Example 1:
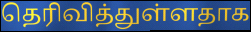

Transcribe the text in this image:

தெரிவித்துள்ளதாக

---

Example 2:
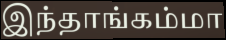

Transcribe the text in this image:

இந்தாங்கம்மா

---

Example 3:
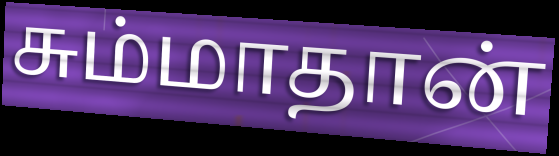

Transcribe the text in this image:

சும்மாதான்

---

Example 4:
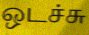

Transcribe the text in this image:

ஒடச்சு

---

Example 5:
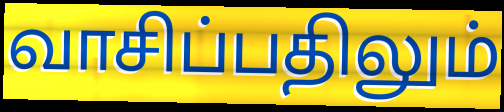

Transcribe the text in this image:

வாசிப்பதிலும்